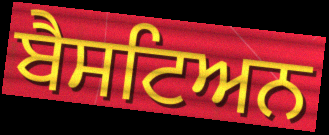
ਬੈਸਟਿਅਨ